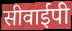
सीवाईपी